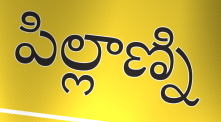
పిల్లాణ్ని